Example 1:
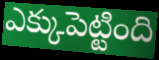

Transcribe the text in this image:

ఎక్కుపెట్టింది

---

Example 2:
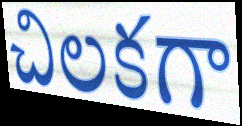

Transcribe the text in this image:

చిలకగా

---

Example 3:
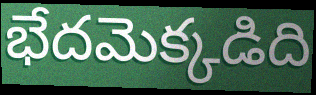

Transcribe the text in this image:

భేదమెక్కడిది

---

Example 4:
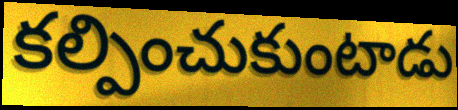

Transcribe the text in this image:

కల్పించుకుంటాడు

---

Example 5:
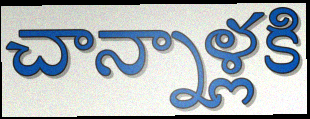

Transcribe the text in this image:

చాన్నాళ్లకి